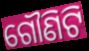
ଗୌଣିଟି